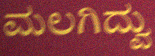
ಮಲಗಿದ್ವು